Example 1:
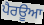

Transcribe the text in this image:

ਪੈਰਊਆ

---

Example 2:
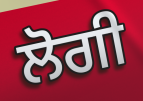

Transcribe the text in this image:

ਲੋਗੀ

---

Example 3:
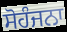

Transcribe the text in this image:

ਸੋਹੰਜਨਾ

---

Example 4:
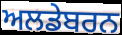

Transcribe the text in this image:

ਅਲਡੇਬਰਨ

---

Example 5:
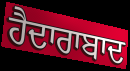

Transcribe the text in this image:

ਹੈਦਾਰਾਬਾਦ